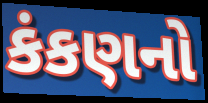
કંકણનો